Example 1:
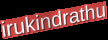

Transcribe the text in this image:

irukindrathu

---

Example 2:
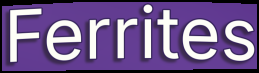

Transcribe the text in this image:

Ferrites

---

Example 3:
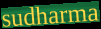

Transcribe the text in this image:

sudharma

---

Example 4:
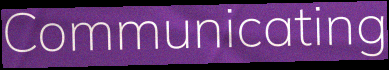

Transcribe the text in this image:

Communicating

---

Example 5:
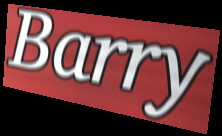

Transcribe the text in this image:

Barry